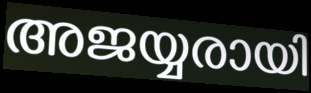
അജയ്യരായി